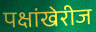
पक्षांखेरीज